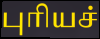
புரியச்